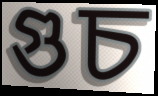
গুচ